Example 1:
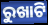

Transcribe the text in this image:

ରୁଖାଟି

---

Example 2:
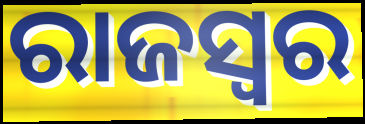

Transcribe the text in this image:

ରାଜସ୍ବର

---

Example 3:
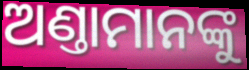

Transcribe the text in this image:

ଅଣ୍ତାମାନଙ୍କୁ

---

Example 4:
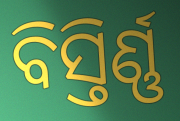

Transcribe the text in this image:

ବିସ୍ତିର୍ଣ୍ଣ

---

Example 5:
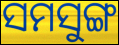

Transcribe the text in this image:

ସମସୁଙ୍ଗ